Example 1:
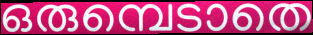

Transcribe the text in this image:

ഒരുമ്പെടാതെ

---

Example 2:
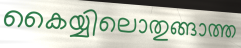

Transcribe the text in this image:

കൈയ്യിലൊതുങ്ങാത്ത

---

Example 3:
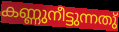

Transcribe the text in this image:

കണ്ണുനീട്ടുന്നതു്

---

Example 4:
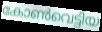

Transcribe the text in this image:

കോൺവെട്ടിയ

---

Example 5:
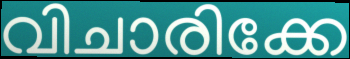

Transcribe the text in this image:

വിചാരിക്കേ